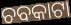
ଚବକାଟା